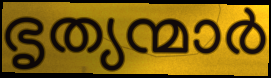
ഭൃത്യന്മാർ